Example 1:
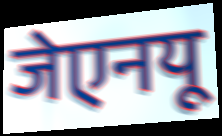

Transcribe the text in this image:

जेएनयू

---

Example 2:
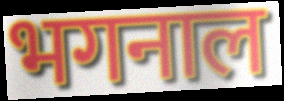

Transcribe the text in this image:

भगनाल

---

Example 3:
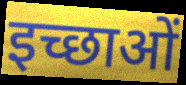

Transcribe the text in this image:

इच्छाओं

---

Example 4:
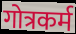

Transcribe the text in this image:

गोत्रकर्म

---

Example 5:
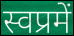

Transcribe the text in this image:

स्वप्रमें